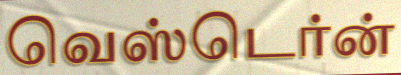
வெஸ்டெர்ன்